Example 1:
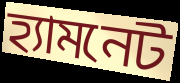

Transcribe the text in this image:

হ্যামনেট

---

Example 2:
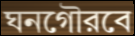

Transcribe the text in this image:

ঘনগৌরবে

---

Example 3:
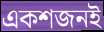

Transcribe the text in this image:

একশজনই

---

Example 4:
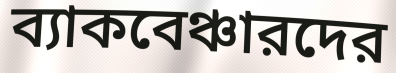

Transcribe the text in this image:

ব্যাকবেঞ্চারদের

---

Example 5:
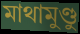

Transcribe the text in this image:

মাথামুণ্ডু